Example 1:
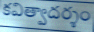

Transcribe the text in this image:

కవిత్వాదర్శం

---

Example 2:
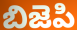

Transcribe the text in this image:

బిజెపి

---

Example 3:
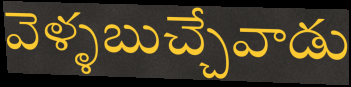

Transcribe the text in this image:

వెళ్ళబుచ్చేవాడు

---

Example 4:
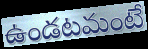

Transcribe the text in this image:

ఉండటమంటే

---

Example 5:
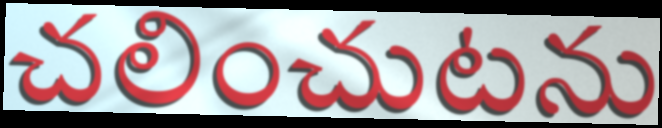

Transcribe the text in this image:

చలించుటను